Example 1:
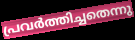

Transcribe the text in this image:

പ്രവർത്തിച്ചതെന്നു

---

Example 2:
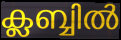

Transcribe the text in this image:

ക്ലബ്ബിൽ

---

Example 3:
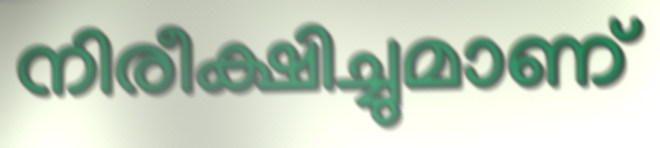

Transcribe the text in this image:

നിരീക്ഷിച്ചുമാണ്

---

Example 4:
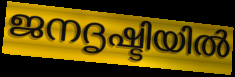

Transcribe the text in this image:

ജനദൃഷ്ടിയിൽ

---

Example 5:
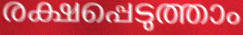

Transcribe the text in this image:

രക്ഷപ്പെടുത്താം